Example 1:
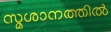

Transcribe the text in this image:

സ്മശാനത്തിൽ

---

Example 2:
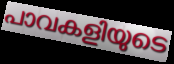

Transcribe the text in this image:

പാവകളിയുടെ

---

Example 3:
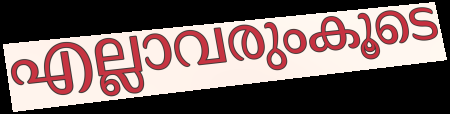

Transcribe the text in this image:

എല്ലാവരുംകൂടെ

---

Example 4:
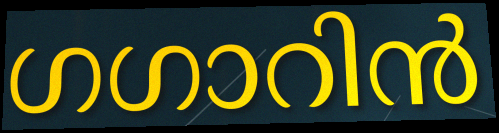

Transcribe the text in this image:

ഗഗാറിൻ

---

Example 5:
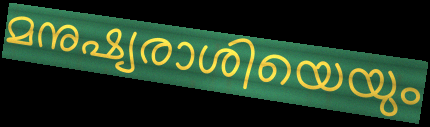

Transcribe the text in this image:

മനുഷ്യരാശിയെയും